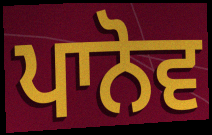
ਪਾਨੋਵ